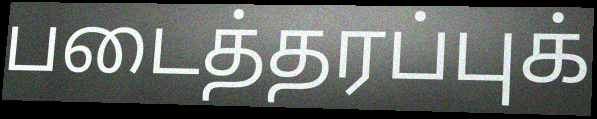
படைத்தரப்புக்